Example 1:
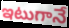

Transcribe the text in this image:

ఇటుగానే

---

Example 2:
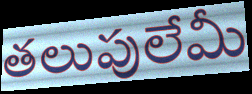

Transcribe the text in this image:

తలుపులేమీ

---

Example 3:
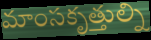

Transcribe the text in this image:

మాంసకృత్తుల్ని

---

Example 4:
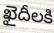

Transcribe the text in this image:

ఖైదీలకి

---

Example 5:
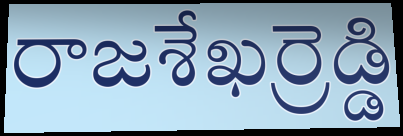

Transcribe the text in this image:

రాజశేఖర్రెడ్డి